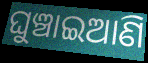
ଘୁଞ୍ଚାଇଆଣି